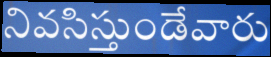
నివసిస్తుండేవారు